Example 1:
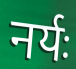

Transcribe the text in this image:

नर्यः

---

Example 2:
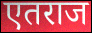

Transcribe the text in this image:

एतराज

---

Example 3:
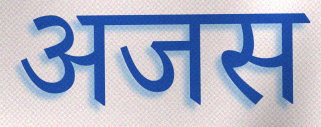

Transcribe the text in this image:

अजस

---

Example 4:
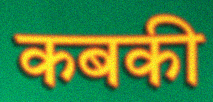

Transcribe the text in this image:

कबकी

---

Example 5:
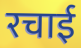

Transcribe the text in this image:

रचाई